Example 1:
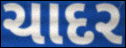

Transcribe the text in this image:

ચાદર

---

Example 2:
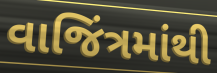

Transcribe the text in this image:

વાજિંત્રમાંથી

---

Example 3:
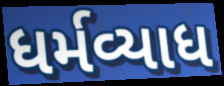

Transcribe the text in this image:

ધર્મવ્યાધ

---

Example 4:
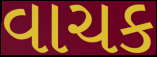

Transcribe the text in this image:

વાચક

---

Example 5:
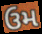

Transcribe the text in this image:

ઉમ